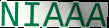
NIAAA